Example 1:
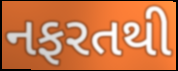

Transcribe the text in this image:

નફરતથી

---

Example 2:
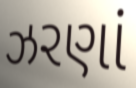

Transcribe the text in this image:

ઝરણાં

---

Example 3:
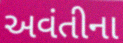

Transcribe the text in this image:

અવંતીના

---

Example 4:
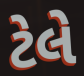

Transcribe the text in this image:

ટેલે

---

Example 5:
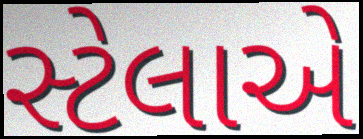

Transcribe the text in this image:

સ્ટેલાએ